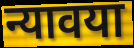
न्यावया